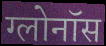
ग्लोनॉस